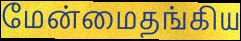
மேன்மைதங்கிய